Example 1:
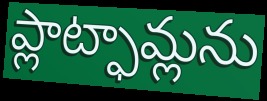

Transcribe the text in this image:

ప్లాట్ఫామ్లను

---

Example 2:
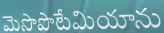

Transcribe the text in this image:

మెసొపొటేమియాను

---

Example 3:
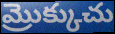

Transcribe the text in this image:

మ్రొక్కుచు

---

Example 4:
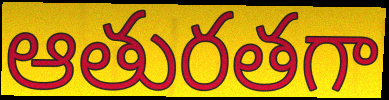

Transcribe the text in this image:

ఆతురతగా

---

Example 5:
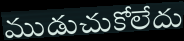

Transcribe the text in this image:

ముడుచుకోలేదు